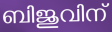
ബിജുവിന്